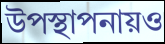
উপস্থাপনায়ও